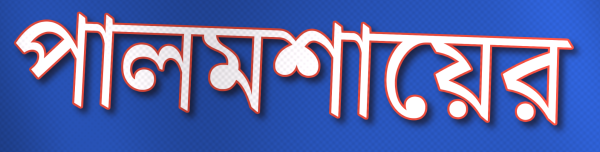
পালমশায়ের